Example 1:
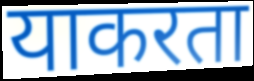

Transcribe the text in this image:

याकरता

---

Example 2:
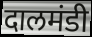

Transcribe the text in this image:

दालमंडी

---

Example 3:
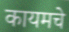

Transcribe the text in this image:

कायमचे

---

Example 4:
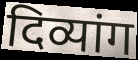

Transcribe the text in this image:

दिव्यांग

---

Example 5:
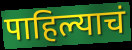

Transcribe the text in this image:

पाहिल्याचं